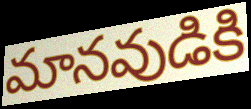
మానవుడికి